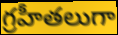
గ్రహీతలుగా